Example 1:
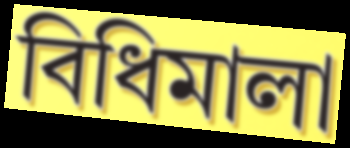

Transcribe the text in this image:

বিধিমালা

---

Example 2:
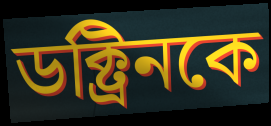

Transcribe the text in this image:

ডক্ট্রিনকে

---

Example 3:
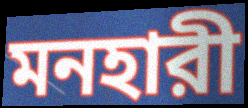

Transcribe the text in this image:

মনহারী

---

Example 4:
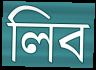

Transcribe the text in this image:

লিব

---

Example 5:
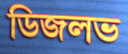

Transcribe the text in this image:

ডিজলভ